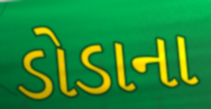
ડોડાના